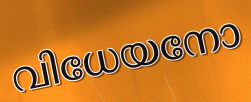
വിധേയനോ